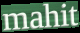
mahit